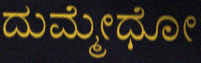
ದುಮ್ಮೇಧೋ